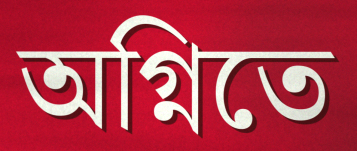
অগ্নিতে